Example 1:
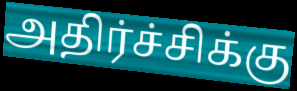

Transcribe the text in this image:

அதிர்ச்சிக்கு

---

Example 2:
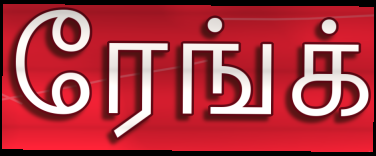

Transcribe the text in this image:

ரேங்க்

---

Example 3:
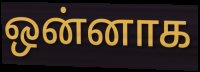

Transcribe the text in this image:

ஒன்னாக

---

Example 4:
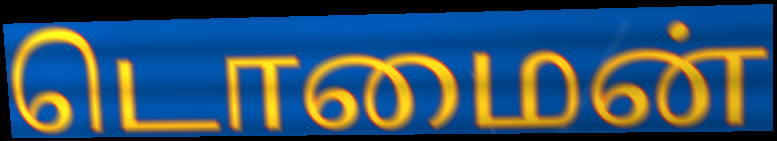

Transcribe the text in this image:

டொமைன்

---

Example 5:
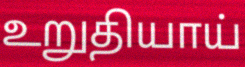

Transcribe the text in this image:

உறுதியாய்